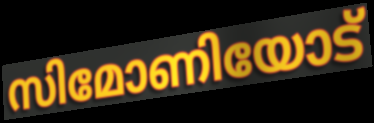
സിമോണിയോട്